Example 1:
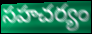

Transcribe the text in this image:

సహచర్యం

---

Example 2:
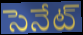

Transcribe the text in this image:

సెనేట్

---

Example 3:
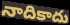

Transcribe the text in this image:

నాదికాదు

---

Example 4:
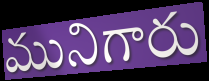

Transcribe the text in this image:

మునిగారు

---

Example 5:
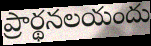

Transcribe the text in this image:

ప్రార్థనలయందు